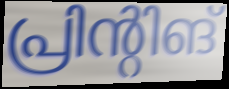
പ്രിന്റിങ്